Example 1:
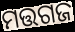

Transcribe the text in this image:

ମତ୍ତଗଜ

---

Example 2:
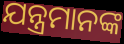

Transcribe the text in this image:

ଯନ୍ତ୍ରମାନଙ୍କ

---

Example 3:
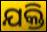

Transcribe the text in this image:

ଯକ୍ତି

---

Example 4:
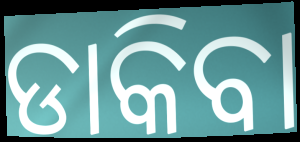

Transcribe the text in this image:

ଡାକିବା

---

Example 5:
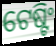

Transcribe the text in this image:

ଟେଷ୍ଟିଂ